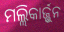
ମଲ୍ଲିକାର୍ଜ୍ଜୁନ